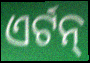
ଏର୍ଟନ୍